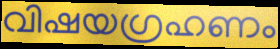
വിഷയഗ്രഹണം